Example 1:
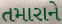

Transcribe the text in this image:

તમારાને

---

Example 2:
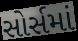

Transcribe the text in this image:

સોર્સમાં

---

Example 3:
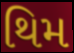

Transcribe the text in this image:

થિમ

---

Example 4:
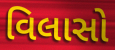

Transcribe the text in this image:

વિલાસો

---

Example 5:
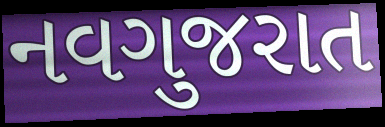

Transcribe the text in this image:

નવગુજરાત